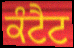
ਕੰਟੈਟ